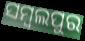
ସମ୍ବଲପୁର